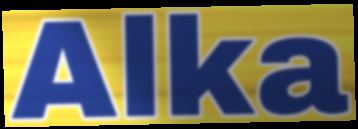
Alka